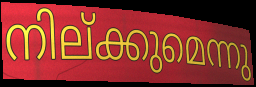
നില്ക്കുമെന്നു